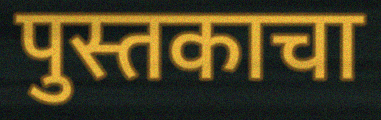
पुस्तकाचा